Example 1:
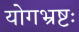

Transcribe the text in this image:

योगभ्रष्टः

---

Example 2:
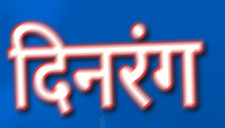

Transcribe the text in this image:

दिनरंग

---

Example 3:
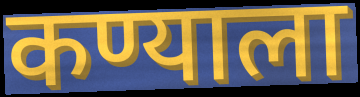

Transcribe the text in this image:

कण्याला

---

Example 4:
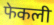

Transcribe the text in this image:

फेकली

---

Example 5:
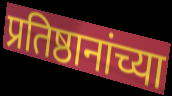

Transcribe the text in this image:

प्रतिष्ठानांच्या